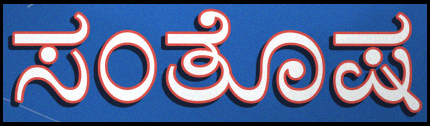
ಸಂತೊಷ